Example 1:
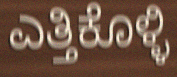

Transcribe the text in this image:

ಎತ್ತಿಕೊಳ್ಳಿ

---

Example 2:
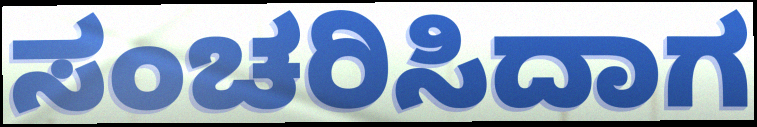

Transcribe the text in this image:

ಸಂಚರಿಸಿದಾಗ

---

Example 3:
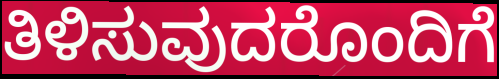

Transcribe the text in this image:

ತಿಳಿಸುವುದರೊಂದಿಗೆ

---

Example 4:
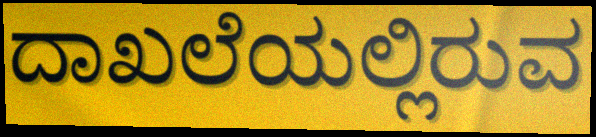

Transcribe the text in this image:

ದಾಖಲೆಯಲ್ಲಿರುವ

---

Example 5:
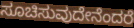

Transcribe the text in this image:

ಸೂಚಿಸುವುದೇನೆಂದರೆ